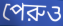
পেরুও